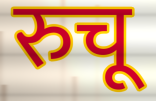
रुचू